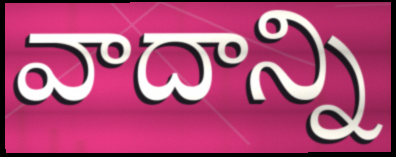
వాదాన్ని